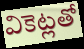
వికెట్లతో